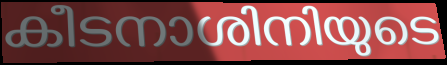
കീടനാശിനിയുടെ